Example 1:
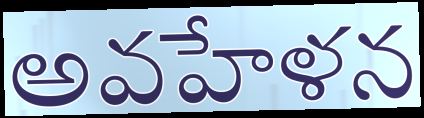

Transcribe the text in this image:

అవహేళన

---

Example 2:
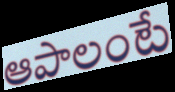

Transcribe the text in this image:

ఆపాలంటే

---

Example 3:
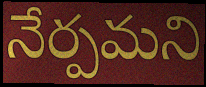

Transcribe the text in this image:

నేర్పమని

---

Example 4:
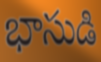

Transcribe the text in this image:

భాసుడి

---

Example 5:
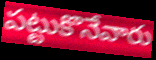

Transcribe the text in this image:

పట్టుకొనేవారు